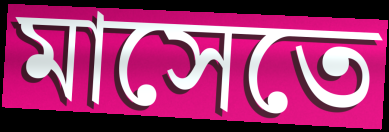
মাসেতে